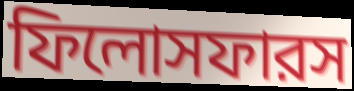
ফিলোসফারস